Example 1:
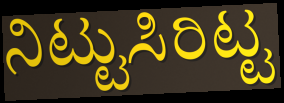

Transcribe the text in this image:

ನಿಟ್ಟುಸಿರಿಟ್ಟ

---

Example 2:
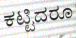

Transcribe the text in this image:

ಕಟ್ಟಿದರೂ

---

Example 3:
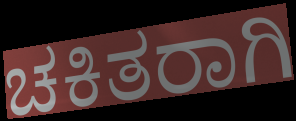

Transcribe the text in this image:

ಚಕಿತರಾಗಿ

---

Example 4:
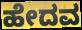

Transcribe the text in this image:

ಹೇದವ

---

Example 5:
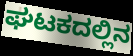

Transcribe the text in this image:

ಘಟಕದಲ್ಲಿನ